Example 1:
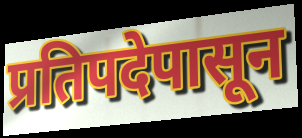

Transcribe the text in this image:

प्रतिपदेपासून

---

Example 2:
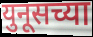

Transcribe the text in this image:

युनूसच्या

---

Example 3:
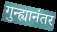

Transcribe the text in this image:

गुन्ह्यानंतर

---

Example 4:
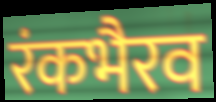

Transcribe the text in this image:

रंकभैरव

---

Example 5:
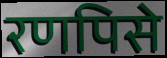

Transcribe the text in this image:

रणपिसे